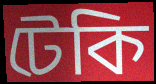
টেকি